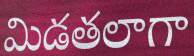
మిడతలాగా